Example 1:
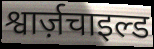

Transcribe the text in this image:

श्वार्ज़चाइल्ड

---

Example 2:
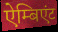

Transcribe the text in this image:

ऐम्बिएंट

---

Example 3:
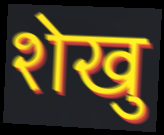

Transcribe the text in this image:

शेखु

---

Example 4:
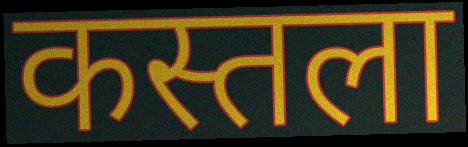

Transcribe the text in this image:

कस्तला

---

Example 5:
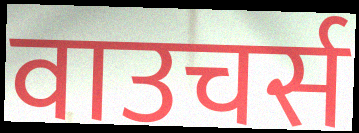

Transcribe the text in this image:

वाउचर्स